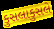
કુસલાકુસલે